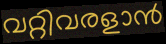
വറ്റിവരളാൻ